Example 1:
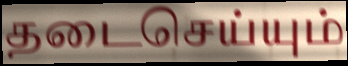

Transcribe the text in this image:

தடைசெய்யும்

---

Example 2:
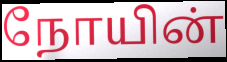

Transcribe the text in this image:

நோயின்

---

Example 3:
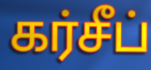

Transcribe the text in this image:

கர்சீப்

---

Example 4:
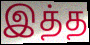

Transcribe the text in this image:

இத்த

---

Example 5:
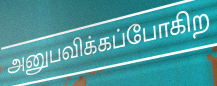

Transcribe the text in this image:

அனுபவிக்கப்போகிற